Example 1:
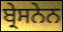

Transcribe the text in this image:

ਬ੍ਰੇਸਨੇਨ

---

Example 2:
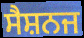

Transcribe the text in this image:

ਸੈਸ਼ਨਜ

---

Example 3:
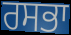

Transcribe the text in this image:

ਰਸਭਾ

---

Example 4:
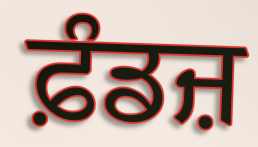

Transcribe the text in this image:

ਫ਼ੰਡਜ਼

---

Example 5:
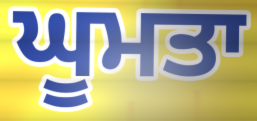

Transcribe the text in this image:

ਘੂਮਤਾ